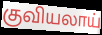
குவியலாய்